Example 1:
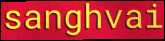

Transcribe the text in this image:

sanghvai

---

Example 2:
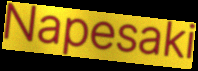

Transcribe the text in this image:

Napesaki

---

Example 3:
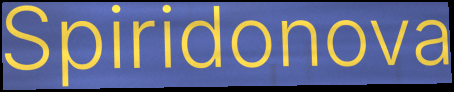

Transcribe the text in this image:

Spiridonova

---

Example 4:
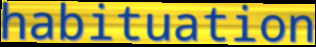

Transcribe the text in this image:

habituation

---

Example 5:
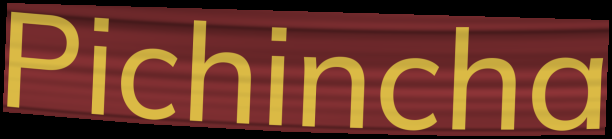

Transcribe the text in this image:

Pichincha